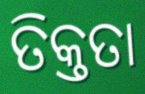
ତିକ୍ତତା